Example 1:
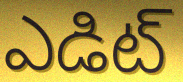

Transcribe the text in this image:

ఎడిట్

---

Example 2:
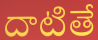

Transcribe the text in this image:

దాటితే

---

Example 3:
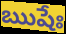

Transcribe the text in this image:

ఋషేః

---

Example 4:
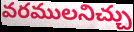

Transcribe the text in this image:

వరములనిచ్చు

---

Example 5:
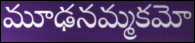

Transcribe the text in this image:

మూఢనమ్మకమో